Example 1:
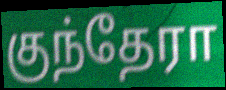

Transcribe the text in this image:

குந்தேரா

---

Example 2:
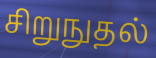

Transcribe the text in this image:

சிறுநுதல்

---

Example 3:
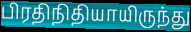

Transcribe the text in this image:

பிரதிநிதியாயிருந்து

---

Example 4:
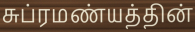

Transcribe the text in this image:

சுப்ரமண்யத்தின்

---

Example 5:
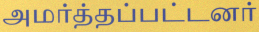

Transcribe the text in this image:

அமர்த்தப்பட்டனர்